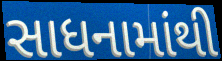
સાધનામાંથી